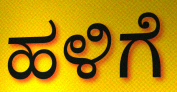
ಹಳಿಗೆ